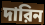
দারিন